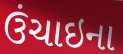
ઉંચાઇના